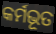
କର୍ମଭୂତ